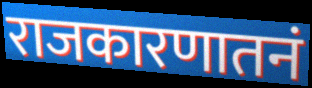
राजकारणातनं